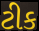
ટીક